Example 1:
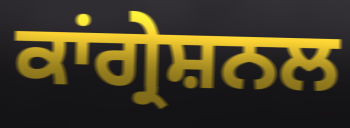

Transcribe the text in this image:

ਕਾਂਗ੍ਰੇਸ਼ਨਲ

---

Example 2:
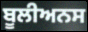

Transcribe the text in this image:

ਬੂਲੀਅਨਸ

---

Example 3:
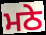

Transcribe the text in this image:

ਮਠੇ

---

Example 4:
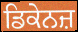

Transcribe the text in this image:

ਡਿਕੇਨਜ਼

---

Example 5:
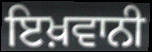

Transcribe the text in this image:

ਇਖ਼ਵਾਨੀ